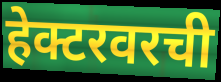
हेक्टरवरची